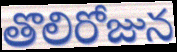
తొలిరోజున